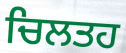
ਚਿਲਤਹ